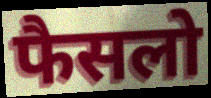
फैसलो